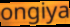
ongiya